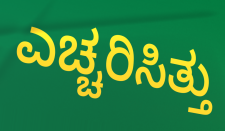
ಎಚ್ಚರಿಸಿತ್ತು